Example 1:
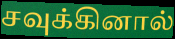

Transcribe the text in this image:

சவுக்கினால்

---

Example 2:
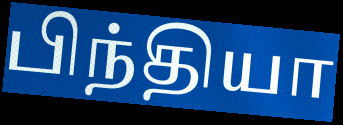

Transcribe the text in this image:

பிந்தியா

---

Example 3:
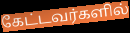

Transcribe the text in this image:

கேட்டவர்களில்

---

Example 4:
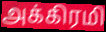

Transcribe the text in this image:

அக்கிரமி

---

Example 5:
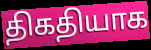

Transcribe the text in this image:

திகதியாக